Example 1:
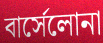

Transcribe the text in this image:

বার্সেলোনা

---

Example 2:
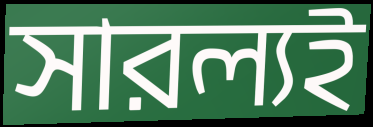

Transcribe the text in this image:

সারল্যই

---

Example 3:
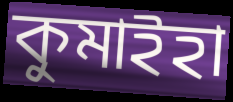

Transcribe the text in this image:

কুমাইহা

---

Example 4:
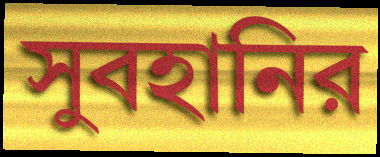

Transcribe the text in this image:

সুবহানির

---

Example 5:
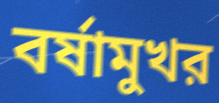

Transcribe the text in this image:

বর্ষামুখর